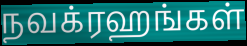
நவக்ரஹங்கள்